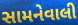
સામનેવાલી